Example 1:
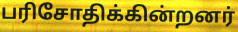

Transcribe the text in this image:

பரிசோதிக்கின்றனர்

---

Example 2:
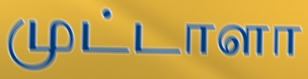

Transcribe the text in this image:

முட்டாளா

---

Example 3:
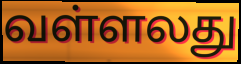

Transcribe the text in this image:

வள்ளலது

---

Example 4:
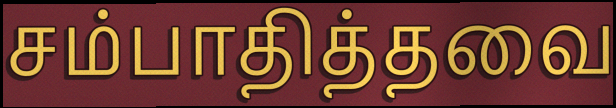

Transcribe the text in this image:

சம்பாதித்தவை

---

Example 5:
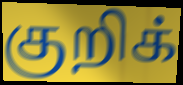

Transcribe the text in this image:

குறிக்